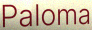
Paloma